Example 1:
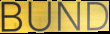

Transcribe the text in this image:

BUND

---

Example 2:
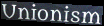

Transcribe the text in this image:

Unionism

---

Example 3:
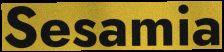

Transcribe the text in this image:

Sesamia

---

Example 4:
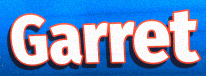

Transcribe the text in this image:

Garret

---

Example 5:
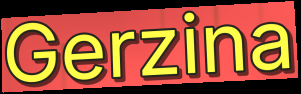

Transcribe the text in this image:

Gerzina